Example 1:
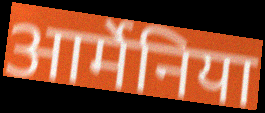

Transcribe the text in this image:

आर्मेनिया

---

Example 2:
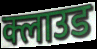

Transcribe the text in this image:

क्लाउड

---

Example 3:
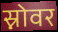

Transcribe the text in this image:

स्नोवर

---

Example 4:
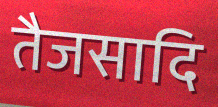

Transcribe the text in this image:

तैजसादि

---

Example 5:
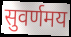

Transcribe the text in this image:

सुवर्णमय